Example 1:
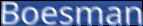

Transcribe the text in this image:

Boesman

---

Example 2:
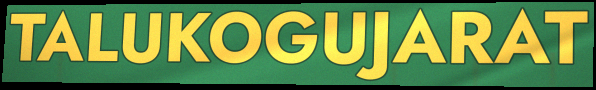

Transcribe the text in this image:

TALUKOGUJARAT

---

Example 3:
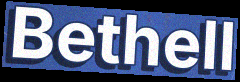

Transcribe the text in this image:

Bethell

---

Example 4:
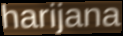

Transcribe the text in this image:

harijana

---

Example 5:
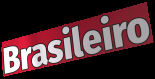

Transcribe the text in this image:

Brasileiro